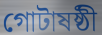
গোটাষষ্ঠী